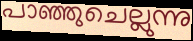
പാഞ്ഞുചെല്ലുന്നു